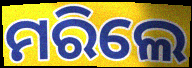
ମରିଲେ